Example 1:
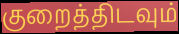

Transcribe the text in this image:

குறைத்திடவும்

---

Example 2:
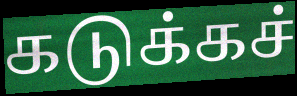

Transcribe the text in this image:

கடுக்கச்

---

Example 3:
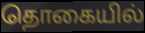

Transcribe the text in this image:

தொகையில்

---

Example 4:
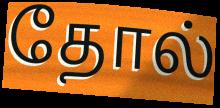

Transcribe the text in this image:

தோல்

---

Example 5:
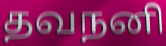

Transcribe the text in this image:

தவநனி